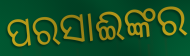
ପରସାଈଙ୍କର